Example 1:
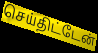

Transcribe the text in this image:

செய்திட்டேன்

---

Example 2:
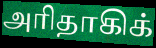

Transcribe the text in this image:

அரிதாகிக்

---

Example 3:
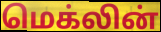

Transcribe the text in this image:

மெக்லின்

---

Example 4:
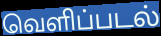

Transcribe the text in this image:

வெளிப்படல்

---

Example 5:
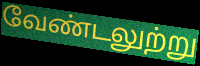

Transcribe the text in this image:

வேண்டலுற்று